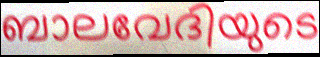
ബാലവേദിയുടെ